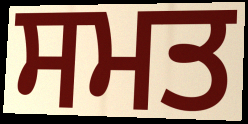
ਸਮਤ